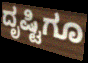
ದೃಷ್ಟಿಗೂ